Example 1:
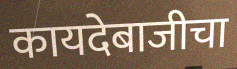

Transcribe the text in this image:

कायदेबाजीचा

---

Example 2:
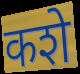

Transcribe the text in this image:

कशे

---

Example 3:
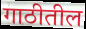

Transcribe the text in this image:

गाठीतील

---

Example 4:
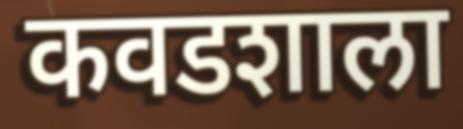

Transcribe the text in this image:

कवडशाला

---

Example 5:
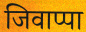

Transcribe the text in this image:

जिवाप्पा